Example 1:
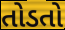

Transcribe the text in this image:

તોડતો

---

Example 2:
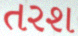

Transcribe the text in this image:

તરશ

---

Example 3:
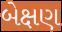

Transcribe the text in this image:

બેક્ષણ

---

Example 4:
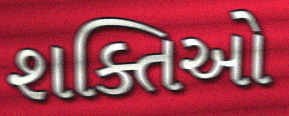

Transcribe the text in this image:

શક્તિઓ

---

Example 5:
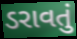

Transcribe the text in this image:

ડરાવતું